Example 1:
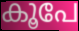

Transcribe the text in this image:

കൂപേ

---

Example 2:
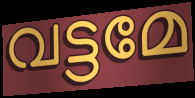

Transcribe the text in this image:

വട്ടമേ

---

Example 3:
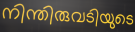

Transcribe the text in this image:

നിന്തിരുവടിയുടെ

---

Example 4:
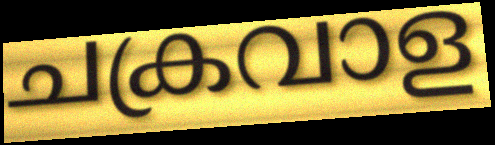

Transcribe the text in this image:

ചക്രവാള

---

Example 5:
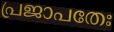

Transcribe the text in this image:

പ്രജാപതേഃ